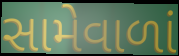
સામેવાળાં